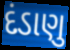
દંડાણુ